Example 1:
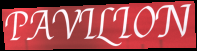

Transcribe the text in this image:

PAVILION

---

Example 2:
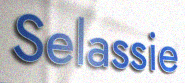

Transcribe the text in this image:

Selassie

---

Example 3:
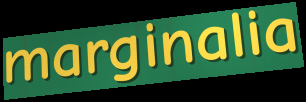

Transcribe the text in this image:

marginalia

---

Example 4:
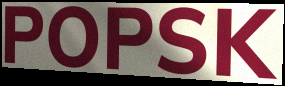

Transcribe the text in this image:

POPSK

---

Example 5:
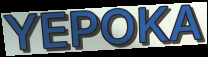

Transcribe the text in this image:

YEPOKA